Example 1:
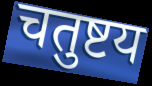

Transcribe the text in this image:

चतुष्टय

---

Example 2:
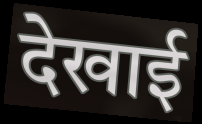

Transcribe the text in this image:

देखाई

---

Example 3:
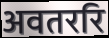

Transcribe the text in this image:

अवतररि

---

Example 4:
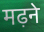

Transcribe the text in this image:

मढ़ने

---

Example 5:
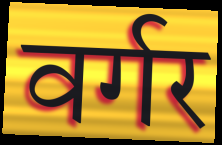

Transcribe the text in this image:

वर्गर